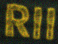
RII